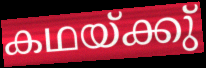
കഥയ്ക്കു്